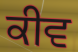
ਕੀਵ